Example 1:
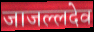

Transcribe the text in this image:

जाजल्लदेव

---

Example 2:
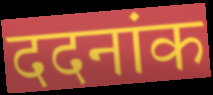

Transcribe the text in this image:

ददनांक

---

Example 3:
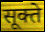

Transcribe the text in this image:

सूक्ते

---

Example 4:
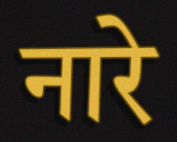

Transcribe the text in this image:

नारे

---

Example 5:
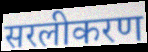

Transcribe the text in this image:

सरलीकरण